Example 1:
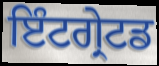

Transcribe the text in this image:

ਇੰਟਗ੍ਰੇਟਡ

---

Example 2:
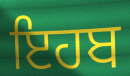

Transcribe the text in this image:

ਇਹਬ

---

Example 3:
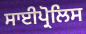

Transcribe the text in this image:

ਸਾਈਪ੍ਰੋਲਿਸ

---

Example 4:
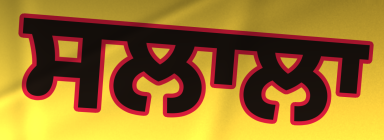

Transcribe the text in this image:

ਸਲਾਲਾ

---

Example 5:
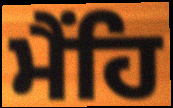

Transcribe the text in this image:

ਮੈਂਹਿ